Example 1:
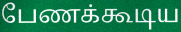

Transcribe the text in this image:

பேணக்கூடிய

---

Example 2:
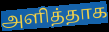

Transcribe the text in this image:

அளித்தாக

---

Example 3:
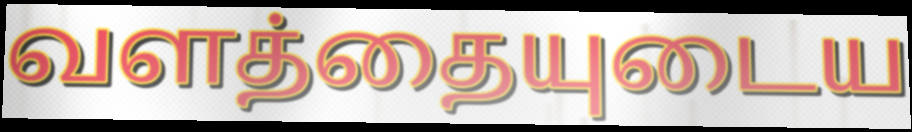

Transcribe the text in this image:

வளத்தையுடைய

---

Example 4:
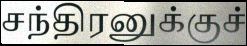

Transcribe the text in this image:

சந்திரனுக்குச்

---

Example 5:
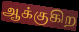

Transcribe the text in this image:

ஆக்குகிற